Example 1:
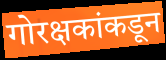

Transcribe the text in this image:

गोरक्षकांकडून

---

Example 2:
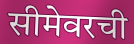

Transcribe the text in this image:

सीमेवरची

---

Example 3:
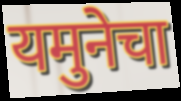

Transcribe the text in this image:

यमुनेचा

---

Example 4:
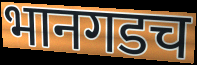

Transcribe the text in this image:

भानगडच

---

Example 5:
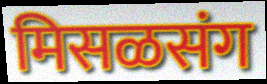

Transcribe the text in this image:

मिसळसंग